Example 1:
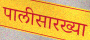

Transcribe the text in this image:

पालीसारख्या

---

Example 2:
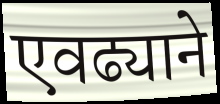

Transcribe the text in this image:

एवढ्याने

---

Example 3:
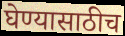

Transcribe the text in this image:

घेण्यासाठीच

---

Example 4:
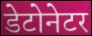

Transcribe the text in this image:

डेटोनेटर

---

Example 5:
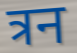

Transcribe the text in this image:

त्रन